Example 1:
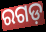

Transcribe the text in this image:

ରଗଡ଼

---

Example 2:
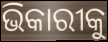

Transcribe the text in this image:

ଭିକାରୀକୁ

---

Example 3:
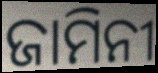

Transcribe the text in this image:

ଜାମିନୀ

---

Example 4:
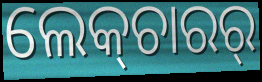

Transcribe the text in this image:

ଲେକ୍‍ଚାରର୍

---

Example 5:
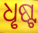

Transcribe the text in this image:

ଧୃଷ୍ଟ